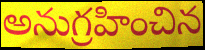
అనుగ్రహించిన